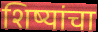
शिष्यांचा